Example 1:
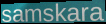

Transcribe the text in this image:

samskara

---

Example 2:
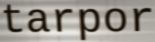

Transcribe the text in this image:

tarpor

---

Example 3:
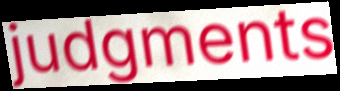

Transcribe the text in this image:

judgments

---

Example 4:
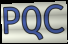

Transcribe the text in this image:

PQC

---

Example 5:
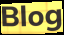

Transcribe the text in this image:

Blog